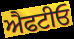
ਐਫਟੀਓ